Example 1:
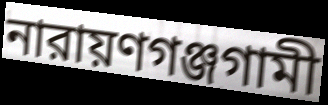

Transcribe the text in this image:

নারায়ণগঞ্জগামী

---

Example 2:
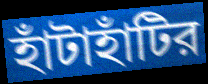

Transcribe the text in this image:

হাঁটাহাঁটির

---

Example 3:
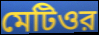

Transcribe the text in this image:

মেটিওর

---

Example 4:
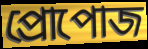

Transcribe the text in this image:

প্রোপোজ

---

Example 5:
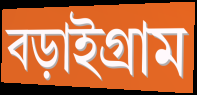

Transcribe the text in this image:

বড়াইগ্রাম